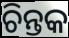
ଚିନ୍ତକ